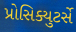
પ્રોસિક્યુટર્સે